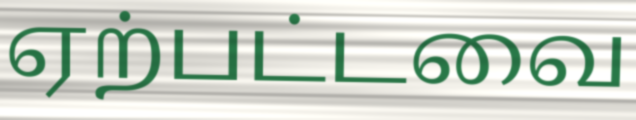
ஏற்பட்டவை